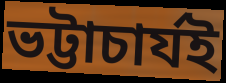
ভট্টাচাৰ্যই